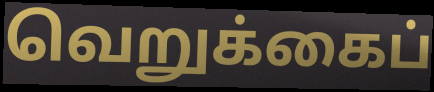
வெறுக்கைப்